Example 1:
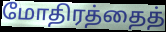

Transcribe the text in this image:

மோதிரத்தைத்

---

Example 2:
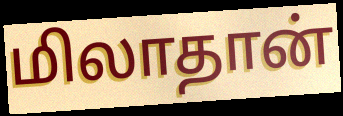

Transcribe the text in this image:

மிலாதான்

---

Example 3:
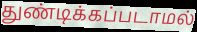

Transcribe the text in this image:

துண்டிக்கப்படாமல்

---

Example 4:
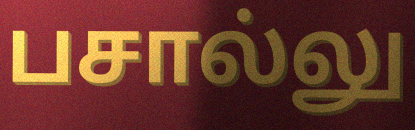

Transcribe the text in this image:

பசால்லு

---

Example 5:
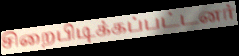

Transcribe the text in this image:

சிறைபிடிக்கப்பட்டனர்